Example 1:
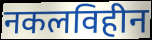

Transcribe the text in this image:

नकलविहीन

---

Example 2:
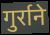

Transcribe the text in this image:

गुर्राने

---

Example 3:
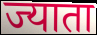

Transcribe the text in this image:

ज्याता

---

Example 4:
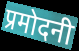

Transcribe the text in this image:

प्रमोदनी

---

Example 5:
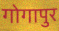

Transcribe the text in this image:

गोगापुर